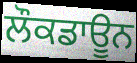
ਲੌਕਡਾਊਨ